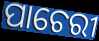
ପାଚେରୀ